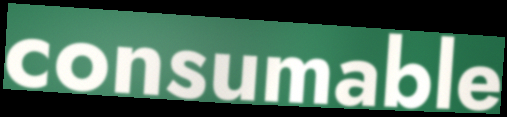
consumable